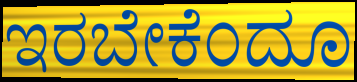
ಇರಬೇಕೆಂದೂ